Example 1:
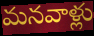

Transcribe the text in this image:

మనవాళ్లు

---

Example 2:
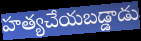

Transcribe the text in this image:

హత్యచేయబడ్డాడు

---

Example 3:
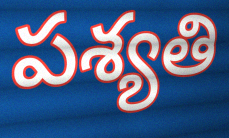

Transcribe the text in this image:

పశ్యతి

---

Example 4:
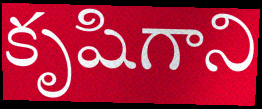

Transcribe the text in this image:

కృషిగాని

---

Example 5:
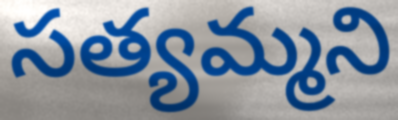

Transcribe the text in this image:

సత్యమ్మని